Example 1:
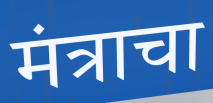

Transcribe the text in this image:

मंत्राचा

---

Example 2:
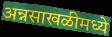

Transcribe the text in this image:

अन्नसाखळीमध्ये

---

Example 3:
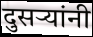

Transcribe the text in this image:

दुसर्‍यांनी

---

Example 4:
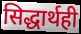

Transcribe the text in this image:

सिद्धार्थही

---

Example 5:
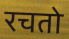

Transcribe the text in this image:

रचतो